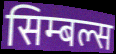
सिम्बल्स